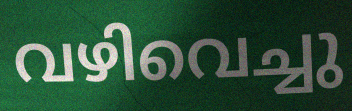
വഴിവെച്ചു